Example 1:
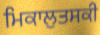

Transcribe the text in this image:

ਮਿਕਾਲੁਤਸਕੀ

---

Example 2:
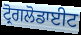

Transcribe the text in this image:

ਟ੍ਰੋਗਲੋਡਾਈਟ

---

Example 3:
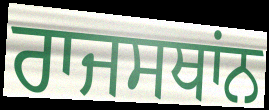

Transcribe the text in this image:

ਰਾਜਸਥਾਂਨ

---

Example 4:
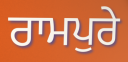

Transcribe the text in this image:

ਰਾਮਪੁਰੇ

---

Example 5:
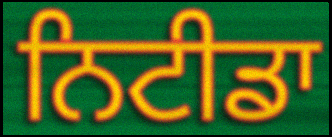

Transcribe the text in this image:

ਨਿਟੀਡਾ